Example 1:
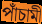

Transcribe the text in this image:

পাঁচামী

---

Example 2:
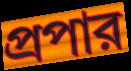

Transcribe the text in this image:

প্রপার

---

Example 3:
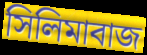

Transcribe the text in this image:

সিলিমাবাজ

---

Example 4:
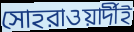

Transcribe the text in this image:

সোহরাওয়ার্দীই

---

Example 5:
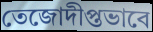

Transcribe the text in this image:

তেজোদীপ্তভাবে